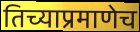
तिच्याप्रमाणेच